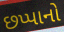
છપ્પાનો